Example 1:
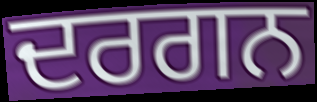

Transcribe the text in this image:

ਦਰਗਨ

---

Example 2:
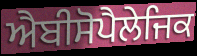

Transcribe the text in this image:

ਐਬੀਸੋਪੈਲੇਜਿਕ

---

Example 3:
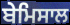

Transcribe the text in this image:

ਬੇਮਿਸਾਲ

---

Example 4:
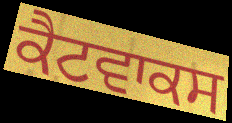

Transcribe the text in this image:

ਕੈਟਵਾਕਸ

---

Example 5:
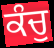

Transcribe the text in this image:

ਕੰਚੁ